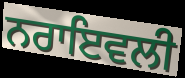
ਨਰਾਇਵਲੀ